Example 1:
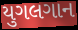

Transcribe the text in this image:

યુગલગાન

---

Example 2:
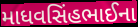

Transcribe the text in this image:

માધવસિંહભાઈના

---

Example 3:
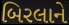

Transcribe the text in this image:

બિરલાને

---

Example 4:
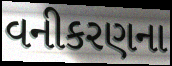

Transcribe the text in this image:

વનીકરણના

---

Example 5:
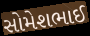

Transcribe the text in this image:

સોમેશભાઈ